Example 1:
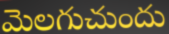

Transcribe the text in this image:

మెలగుచుందు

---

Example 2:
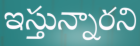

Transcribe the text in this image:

ఇస్తున్నారని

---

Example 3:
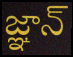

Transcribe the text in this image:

జ్ఞాన్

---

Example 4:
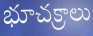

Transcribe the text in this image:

భూచక్రాలు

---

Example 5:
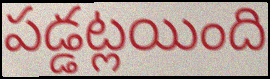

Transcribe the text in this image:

పడ్డట్లయింది